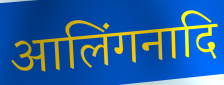
आलिंगनादि